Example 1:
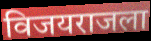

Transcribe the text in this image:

विजयराजला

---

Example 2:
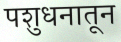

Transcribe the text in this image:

पशुधनातून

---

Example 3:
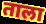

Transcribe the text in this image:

ताला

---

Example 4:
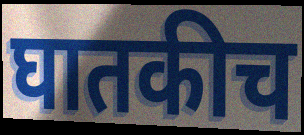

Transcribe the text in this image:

घातकीच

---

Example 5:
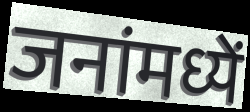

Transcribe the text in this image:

जनांमध्यें